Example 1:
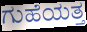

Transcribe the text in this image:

ಗುಹೆಯತ್ತ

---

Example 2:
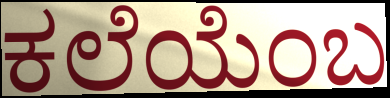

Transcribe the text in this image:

ಕಲೆಯೆಂಬ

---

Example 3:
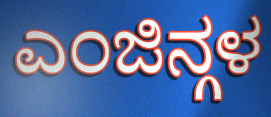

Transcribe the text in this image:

ಎಂಜಿನ್ಗಳ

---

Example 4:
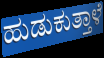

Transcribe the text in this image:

ಹುಡುಕುತ್ತಾಳೆ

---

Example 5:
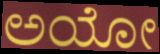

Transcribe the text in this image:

ಅಯೋ